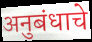
अनुबंधाचे